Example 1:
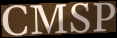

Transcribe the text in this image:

CMSP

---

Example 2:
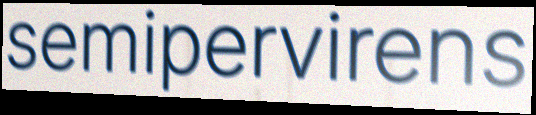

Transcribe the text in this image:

semipervirens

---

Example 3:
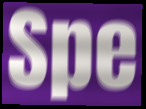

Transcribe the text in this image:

Spe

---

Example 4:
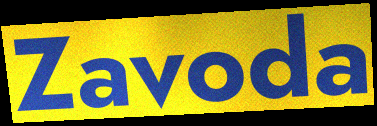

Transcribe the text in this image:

Zavoda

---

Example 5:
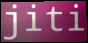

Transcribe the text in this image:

jiti